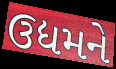
ઉદ્યમને